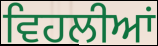
ਵਿਹਲੀਆਂ